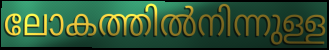
ലോകത്തിൽനിന്നുള്ള